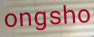
ongsho